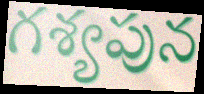
గశ్యపున